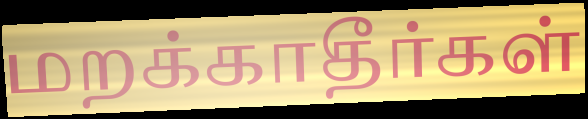
மறக்காதீர்கள்